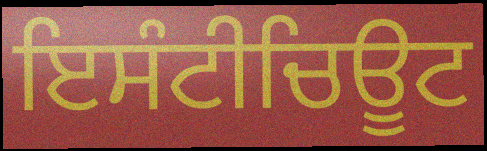
ਇਸੰਟੀਚਿਊਟ